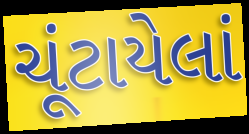
ચૂંટાયેલાં